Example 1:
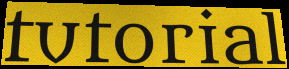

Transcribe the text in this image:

tutorial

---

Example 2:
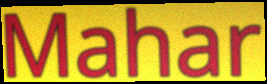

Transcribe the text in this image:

Mahar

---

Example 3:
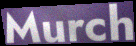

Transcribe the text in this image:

Murch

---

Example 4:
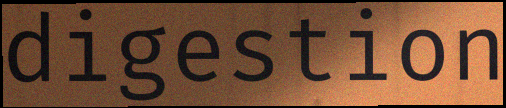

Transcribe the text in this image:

digestion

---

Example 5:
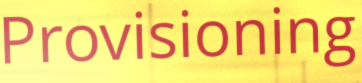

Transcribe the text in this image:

Provisioning